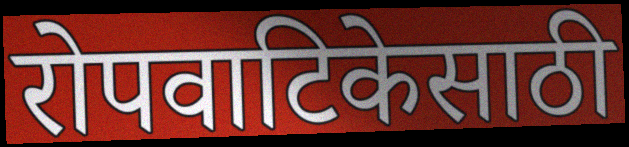
रोपवाटिकेसाठी